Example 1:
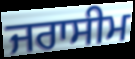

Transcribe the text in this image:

ਜਰਾਸੀਮ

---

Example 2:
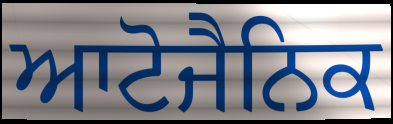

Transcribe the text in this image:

ਆਟੋਜੈਨਿਕ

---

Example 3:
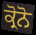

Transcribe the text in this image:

ਕ੍ਰੋਨੋ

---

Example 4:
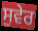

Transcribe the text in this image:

ਸੁਵੇਰ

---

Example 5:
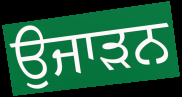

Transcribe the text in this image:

ਉਜਾੜਨ